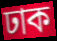
ঢাক